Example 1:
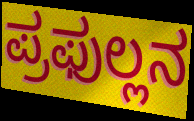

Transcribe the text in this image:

ಪ್ರಫುಲ್ಲನ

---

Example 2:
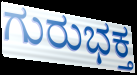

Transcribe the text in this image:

ಗುರುಭಕ್ತ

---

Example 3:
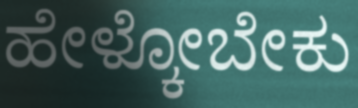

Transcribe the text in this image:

ಹೇಳ್ಕೋಬೇಕು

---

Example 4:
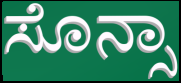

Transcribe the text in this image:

ಸೊನ್ಸಾ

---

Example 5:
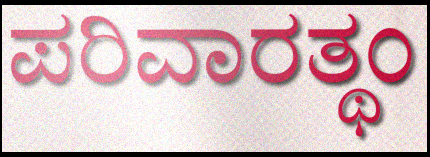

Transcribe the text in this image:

ಪರಿವಾರತ್ಥಂ